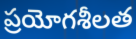
ప్రయోగశీలత